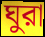
ঘুরা